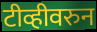
टीव्हीवरुन